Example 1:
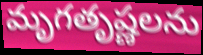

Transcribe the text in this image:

మృగతృష్ణలను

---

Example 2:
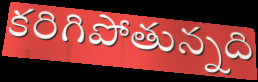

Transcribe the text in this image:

కరిగిపోతున్నది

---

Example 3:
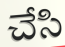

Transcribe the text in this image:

చేసి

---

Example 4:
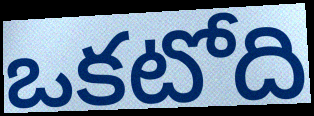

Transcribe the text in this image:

ఒకటోది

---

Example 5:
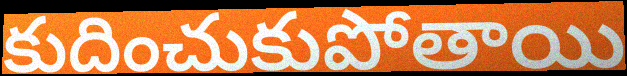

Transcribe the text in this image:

కుదించుకుపోతాయి